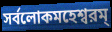
সর্বলোকমহেশ্বরম্